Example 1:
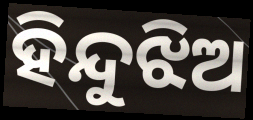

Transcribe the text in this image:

ହିନ୍ଦୁଝିଅ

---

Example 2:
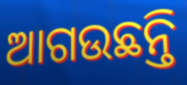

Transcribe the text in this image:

ଆଗଉଛନ୍ତି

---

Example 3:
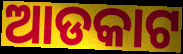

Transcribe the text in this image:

ଆଡକାଟ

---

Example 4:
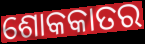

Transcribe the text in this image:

ଶୋକକାତର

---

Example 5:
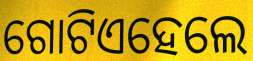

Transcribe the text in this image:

ଗୋଟିଏହେଲେ